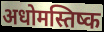
अधोमस्तिष्क